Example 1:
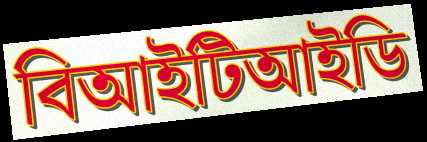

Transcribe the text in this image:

বিআইটিআইডি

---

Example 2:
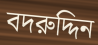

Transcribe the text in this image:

বদরুদ্দিন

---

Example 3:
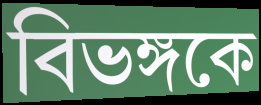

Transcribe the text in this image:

বিভঙ্গকে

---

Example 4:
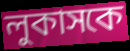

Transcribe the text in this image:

লুকাসকে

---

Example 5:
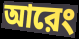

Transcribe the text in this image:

আরেং